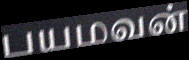
பயமவன்